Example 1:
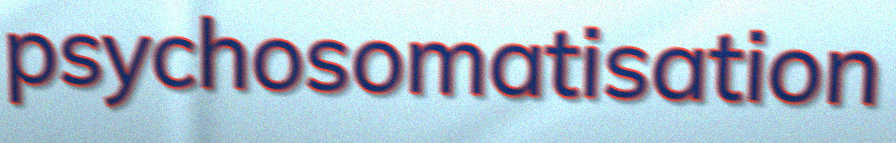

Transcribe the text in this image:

psychosomatisation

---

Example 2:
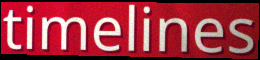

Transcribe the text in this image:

timelines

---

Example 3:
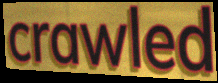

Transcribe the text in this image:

crawled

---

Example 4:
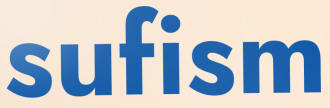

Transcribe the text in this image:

sufism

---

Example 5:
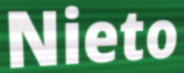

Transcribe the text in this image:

Nieto